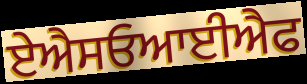
ਏਐਸਓਆਈਐਫ